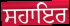
ਸਹਾਇਰ